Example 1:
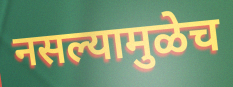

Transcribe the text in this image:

नसल्यामुळेच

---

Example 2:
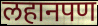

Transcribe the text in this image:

लहानपण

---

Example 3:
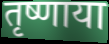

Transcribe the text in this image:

तृष्णाया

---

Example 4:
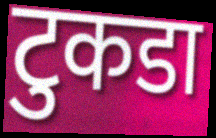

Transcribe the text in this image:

टुकडा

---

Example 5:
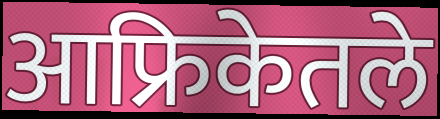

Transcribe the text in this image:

आफ्रिकेतले